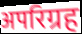
अपरिग्रह